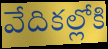
వేదికల్లోకి